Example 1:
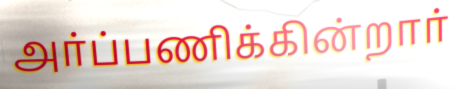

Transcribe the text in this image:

அர்ப்பணிக்கின்றார்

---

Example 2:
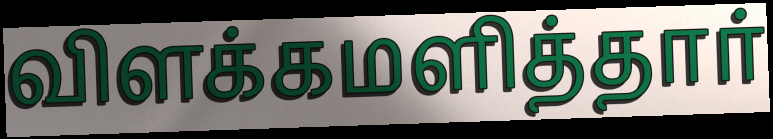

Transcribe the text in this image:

விளக்கமளித்தார்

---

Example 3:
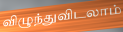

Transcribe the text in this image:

விழுந்துவிடலாம்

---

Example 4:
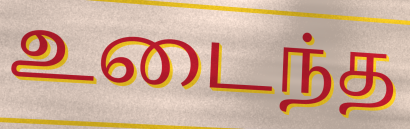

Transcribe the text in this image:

உடைந்த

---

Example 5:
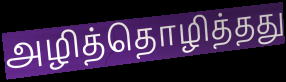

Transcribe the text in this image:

அழித்தொழித்தது